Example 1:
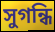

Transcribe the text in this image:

সুগন্ধি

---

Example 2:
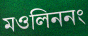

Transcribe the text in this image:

মওলিননং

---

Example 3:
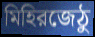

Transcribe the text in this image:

মিহিরজেঠু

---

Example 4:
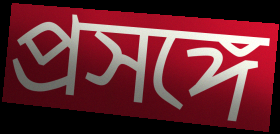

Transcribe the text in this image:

প্রসঙ্গে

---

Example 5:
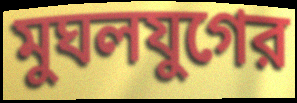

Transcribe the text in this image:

মুঘলযুগের